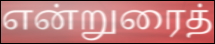
என்றுரைத்